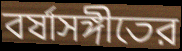
বর্ষাসঙ্গীতের